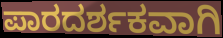
ಪಾರದರ್ಶಕವಾಗಿ